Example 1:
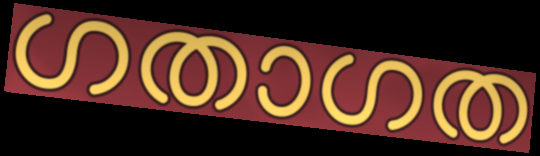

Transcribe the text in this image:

ഗതാഗത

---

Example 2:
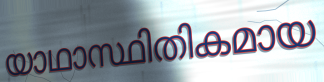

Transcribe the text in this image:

യാഥാസ്ഥിതികമായ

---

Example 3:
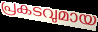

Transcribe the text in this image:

പ്രകടവുമായ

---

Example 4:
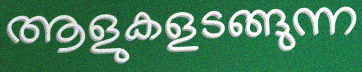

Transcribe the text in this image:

ആളുകളടങ്ങുന്ന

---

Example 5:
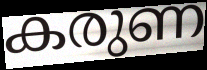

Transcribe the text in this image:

കരുണ